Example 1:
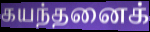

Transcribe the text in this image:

கயந்தனைக்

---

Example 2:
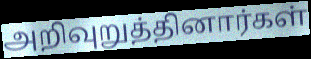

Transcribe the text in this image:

அறிவுறுத்தினார்கள்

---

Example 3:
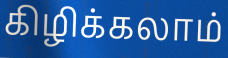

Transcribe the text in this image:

கிழிக்கலாம்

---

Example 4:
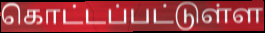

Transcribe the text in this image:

கொட்டப்பட்டுள்ள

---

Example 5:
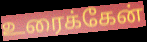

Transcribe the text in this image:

உரைக்கேன்